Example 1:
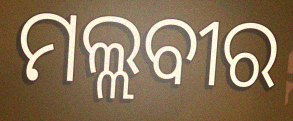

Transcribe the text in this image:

ମଲ୍ଲବୀର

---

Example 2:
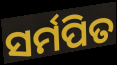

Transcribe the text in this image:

ସର୍ମପିତ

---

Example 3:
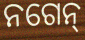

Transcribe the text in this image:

ନଗେନ୍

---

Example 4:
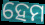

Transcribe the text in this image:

ହେମ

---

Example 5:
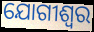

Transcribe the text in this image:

ଯୋଗୀଶ୍ୱର